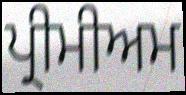
ਪ੍ਰੀਮੀਅਮ